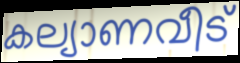
കല്യാണവീട്